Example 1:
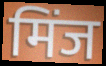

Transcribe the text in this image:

मिंज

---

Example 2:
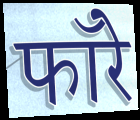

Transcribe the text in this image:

फॉरे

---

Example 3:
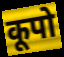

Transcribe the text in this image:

कूपो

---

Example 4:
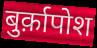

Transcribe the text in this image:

बुर्क़ापोश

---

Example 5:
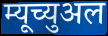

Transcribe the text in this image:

म्यूच्युअल